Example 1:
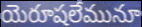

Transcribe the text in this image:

యెరూషలేమునూ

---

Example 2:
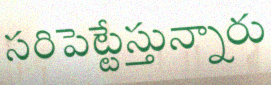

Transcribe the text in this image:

సరిపెట్టేస్తున్నారు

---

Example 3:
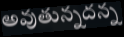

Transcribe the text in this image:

అవుతున్నదన్న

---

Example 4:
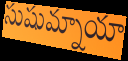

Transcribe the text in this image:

సుషుమ్నాయా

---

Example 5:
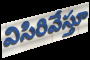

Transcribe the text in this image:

విసిరివేస్తూ